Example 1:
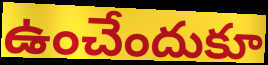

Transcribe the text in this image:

ఉంచేందుకూ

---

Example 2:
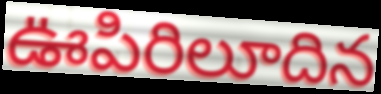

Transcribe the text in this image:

ఊపిరిలూదిన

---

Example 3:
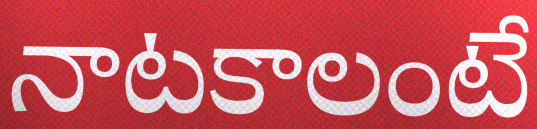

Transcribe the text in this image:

నాటకాలంటే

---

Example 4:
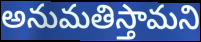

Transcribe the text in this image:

అనుమతిస్తామని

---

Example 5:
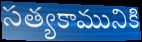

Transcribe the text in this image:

సత్యకామునికి